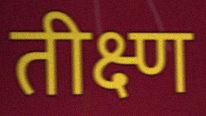
तीक्ष्ण